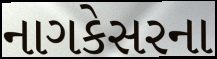
નાગકેસરના